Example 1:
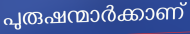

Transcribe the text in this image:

പുരുഷന്മാർക്കാണ്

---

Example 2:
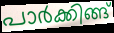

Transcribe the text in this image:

പാർക്കിങ്ങ്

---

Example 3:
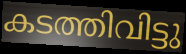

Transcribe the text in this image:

കടത്തിവിട്ടു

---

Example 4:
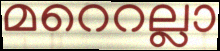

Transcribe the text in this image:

മറെറല്ലാ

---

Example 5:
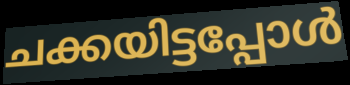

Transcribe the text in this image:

ചക്കയിട്ടപ്പോൾ